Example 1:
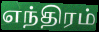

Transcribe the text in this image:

எந்திரம்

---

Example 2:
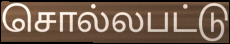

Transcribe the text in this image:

சொல்லபட்டு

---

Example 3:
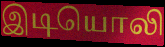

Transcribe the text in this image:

இடியொலி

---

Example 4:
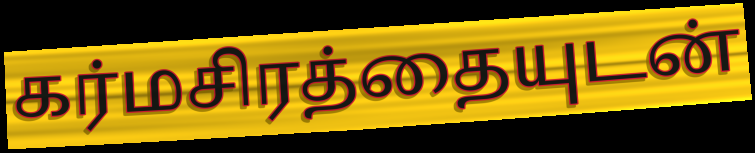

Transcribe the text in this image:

கர்மசிரத்தையுடன்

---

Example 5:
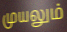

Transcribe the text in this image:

முயலும்